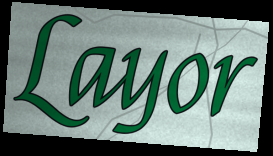
Layor